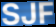
SJF